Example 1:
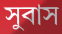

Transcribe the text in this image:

সুবাস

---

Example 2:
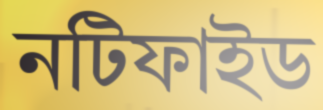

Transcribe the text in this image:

নটিফাইড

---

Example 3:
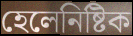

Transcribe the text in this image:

হেলেনিষ্টিক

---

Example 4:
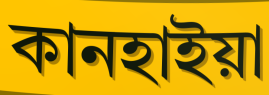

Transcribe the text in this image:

কানহাইয়া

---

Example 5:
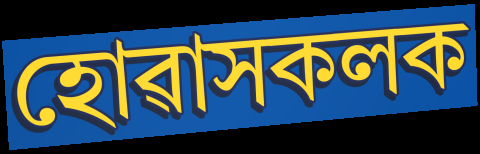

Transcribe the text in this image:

হোৱাসকলক